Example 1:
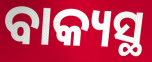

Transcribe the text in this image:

ବାକ୍ୟସ୍ଥ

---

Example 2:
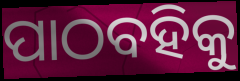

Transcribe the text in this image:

ପାଠବହିକୁ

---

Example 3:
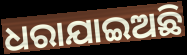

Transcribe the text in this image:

ଧରାଯାଇଅଛି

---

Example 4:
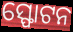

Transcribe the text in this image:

ସ୍ଫୋଟନ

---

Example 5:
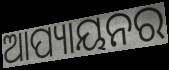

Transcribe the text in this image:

ଆପ୍ୟାୟନର